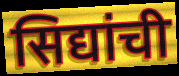
सिद्यांची